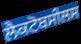
ਲੈਕਟੋਬਸੀਲਸ